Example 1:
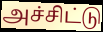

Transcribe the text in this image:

அச்சிட்டு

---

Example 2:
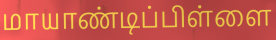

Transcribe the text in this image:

மாயாண்டிப்பிள்ளை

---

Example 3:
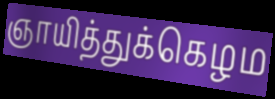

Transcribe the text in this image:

ஞாயித்துக்கெழம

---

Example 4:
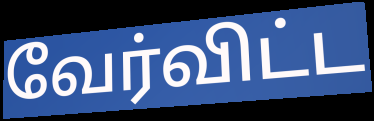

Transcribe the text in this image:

வேர்விட்ட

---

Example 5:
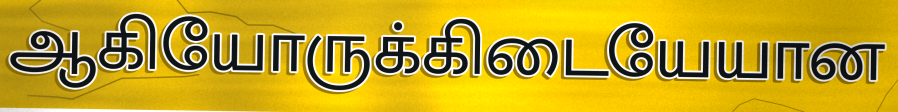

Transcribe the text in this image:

ஆகியோருக்கிடையேயான